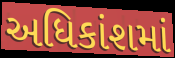
અધિકાંશમાં